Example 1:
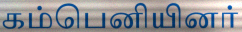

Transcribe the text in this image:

கம்பெனியினர்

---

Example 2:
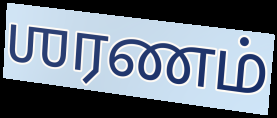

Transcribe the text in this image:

ஶரணம்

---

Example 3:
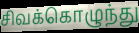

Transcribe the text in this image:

சிவக்கொழுந்து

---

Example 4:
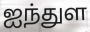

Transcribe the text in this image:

ஐந்துள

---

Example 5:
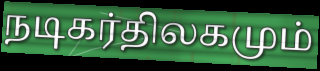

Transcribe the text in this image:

நடிகர்திலகமும்